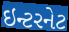
ઇન્ટરનેટ